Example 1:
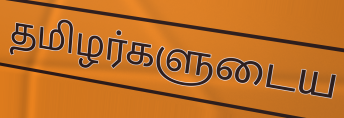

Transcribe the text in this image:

தமிழர்களுடைய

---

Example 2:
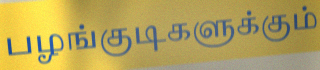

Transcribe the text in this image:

பழங்குடிகளுக்கும்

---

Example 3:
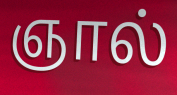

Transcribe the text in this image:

ஞால்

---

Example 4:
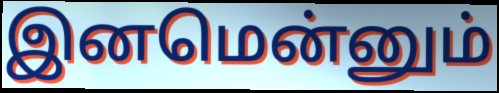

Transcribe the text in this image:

இனமென்னும்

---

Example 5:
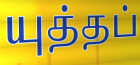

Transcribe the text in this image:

யுத்தப்